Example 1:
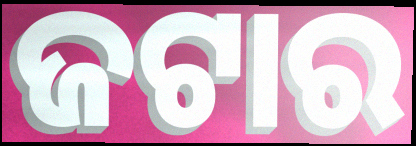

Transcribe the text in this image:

ଜଟାର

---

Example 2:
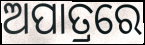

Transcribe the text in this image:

ଅପାତ୍ରରେ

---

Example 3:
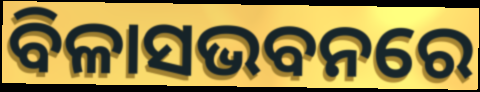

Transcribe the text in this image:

ବିଳାସଭବନରେ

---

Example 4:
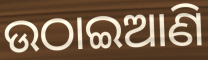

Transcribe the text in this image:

ଉଠାଇଆଣି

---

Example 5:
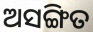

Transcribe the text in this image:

ଅସଙ୍ଗିତ